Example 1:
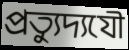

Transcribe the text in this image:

প্রত্যুদ্যযৌ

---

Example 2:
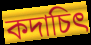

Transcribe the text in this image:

কদাচিৎ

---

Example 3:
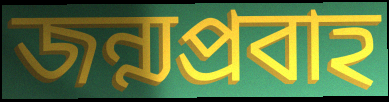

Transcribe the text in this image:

জন্মপ্রবাহ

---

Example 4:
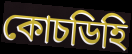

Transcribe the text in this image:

কোচডিহি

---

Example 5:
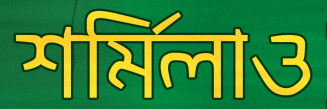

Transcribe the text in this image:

শর্মিলাও